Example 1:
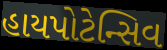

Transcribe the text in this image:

હાયપોટેન્સિવ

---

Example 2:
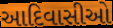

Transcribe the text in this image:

આદિવાસીઓ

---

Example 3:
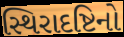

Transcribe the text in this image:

સ્થિરાદષ્ટિનો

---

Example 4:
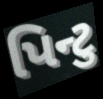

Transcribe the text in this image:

પિન્ટુ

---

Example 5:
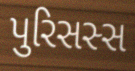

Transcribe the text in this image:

પુરિસસ્સ